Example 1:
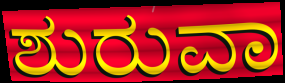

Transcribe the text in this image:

ಶುರುವಾ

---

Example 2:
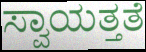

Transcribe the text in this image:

ಸ್ವಾಯತ್ತತೆ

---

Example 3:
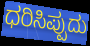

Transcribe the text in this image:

ಧರಿಸಿಪ್ಪುದು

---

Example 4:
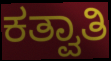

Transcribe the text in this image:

ಕತ್ವಾತಿ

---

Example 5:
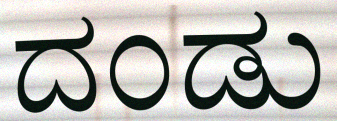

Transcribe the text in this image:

ದಂಡು